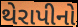
થેરાપીનો